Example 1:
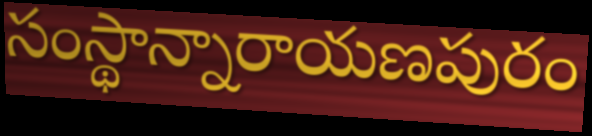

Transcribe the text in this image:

సంస్థాన్నారాయణపురం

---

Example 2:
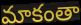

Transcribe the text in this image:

మాకంతా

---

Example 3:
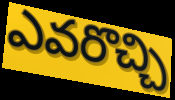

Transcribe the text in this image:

ఎవరొచ్చి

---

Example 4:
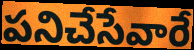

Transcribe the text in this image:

పనిచేసేవారే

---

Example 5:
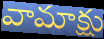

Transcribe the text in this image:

వామాక్షు